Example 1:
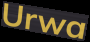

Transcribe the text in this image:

Urwa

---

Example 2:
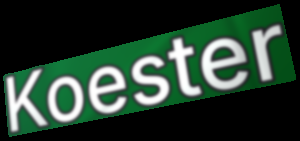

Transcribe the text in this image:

Koester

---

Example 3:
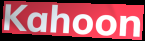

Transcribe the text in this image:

Kahoon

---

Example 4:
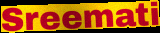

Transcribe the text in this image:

Sreemati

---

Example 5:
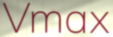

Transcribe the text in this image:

Vmax